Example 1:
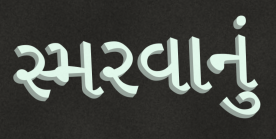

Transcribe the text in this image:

સ્મરવાનું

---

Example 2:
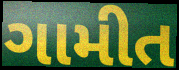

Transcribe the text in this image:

ગામીત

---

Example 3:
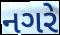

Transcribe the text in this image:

નગરે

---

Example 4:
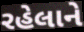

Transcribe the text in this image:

રહેલાને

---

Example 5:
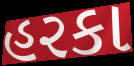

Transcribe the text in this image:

હરકા